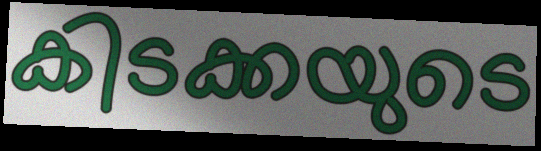
കിടക്കയുടെ